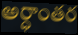
అర్ధాంతర